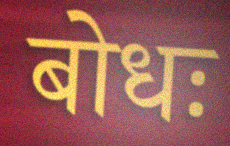
बोधः